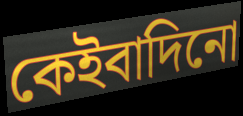
কেইবাদিনো